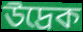
উদ্ৰেক